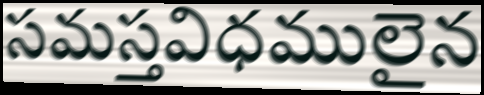
సమస్తవిధములైన